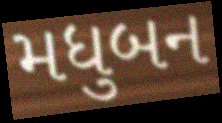
મધુબન